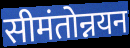
सीमंतोन्नयन